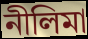
নীলিমা